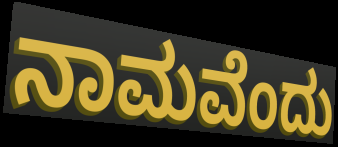
ನಾಮವೆಂದು